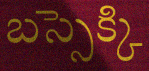
బస్సెక్కి